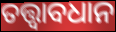
ତତ୍ତ୍ବାବଧାନ